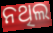
ନଥିଲ